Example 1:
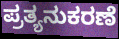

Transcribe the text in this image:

ಪ್ರತ್ಯನುಕರಣೆ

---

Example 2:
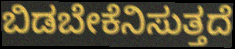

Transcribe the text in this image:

ಬಿಡಬೇಕೆನಿಸುತ್ತದೆ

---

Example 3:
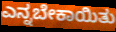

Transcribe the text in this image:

ಎನ್ನಬೇಕಾಯಿತು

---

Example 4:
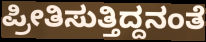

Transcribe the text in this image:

ಪ್ರೀತಿಸುತ್ತಿದ್ದನಂತೆ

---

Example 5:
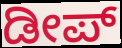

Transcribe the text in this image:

ಡೀಪ್